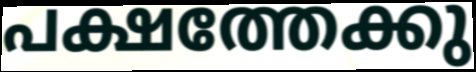
പക്ഷത്തേക്കു